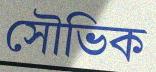
সৌভিক